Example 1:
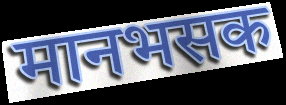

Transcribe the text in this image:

मानभसक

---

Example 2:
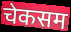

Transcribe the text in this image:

चेकसम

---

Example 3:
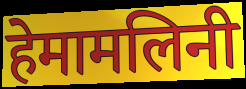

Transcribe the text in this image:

हेमामलिनी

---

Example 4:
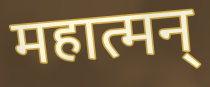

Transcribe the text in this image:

महात्मन्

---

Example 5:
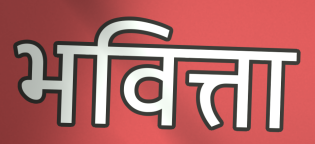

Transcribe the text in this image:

भवित्ता